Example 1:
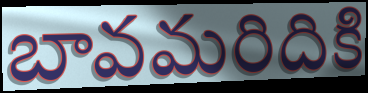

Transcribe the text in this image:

బావమరిదికి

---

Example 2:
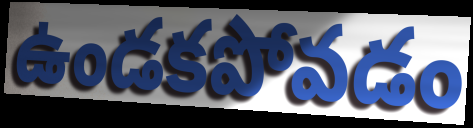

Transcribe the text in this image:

ఉండకపోవడం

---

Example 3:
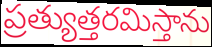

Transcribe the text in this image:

ప్రత్యుత్తరమిస్తాను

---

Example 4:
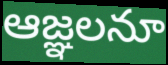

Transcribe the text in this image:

ఆజ్ఞలనూ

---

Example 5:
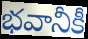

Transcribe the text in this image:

భవానీకీ